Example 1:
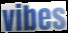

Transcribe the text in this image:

vibes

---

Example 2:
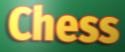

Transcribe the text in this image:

Chess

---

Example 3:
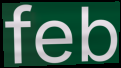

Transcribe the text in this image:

feb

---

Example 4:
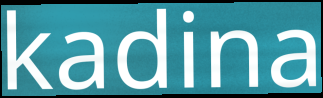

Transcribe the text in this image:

kadina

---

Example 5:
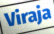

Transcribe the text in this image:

Viraja